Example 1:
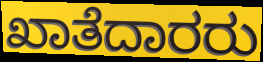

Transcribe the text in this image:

ಖಾತೆದಾರರು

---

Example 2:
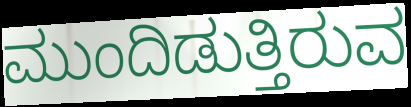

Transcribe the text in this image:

ಮುಂದಿಡುತ್ತಿರುವ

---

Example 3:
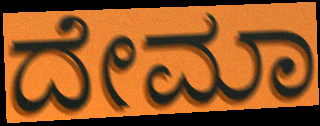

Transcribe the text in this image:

ದೇಮಾ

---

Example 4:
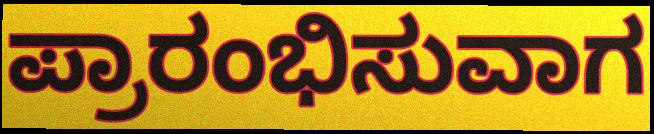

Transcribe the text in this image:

ಪ್ರಾರಂಭಿಸುವಾಗ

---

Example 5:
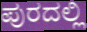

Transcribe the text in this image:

ಪುರದಲ್ಲಿ